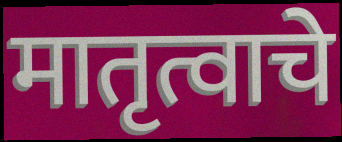
मातृत्वाचे